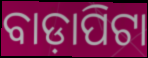
ବାଡ଼ାପିଟା